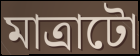
মাত্ৰাটো